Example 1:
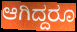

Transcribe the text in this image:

ಆಗಿದ್ದರೂ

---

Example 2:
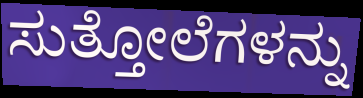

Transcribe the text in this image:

ಸುತ್ತೋಲೆಗಳನ್ನು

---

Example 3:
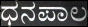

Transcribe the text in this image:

ಧನಪಾಲ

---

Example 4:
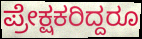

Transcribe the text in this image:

ಪ್ರೇಕ್ಷಕರಿದ್ದರೂ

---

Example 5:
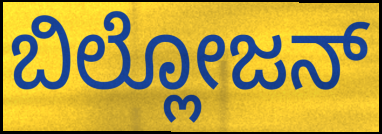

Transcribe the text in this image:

ಬಿಲ್ಲೋಜನ್